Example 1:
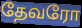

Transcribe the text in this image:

தேவரோ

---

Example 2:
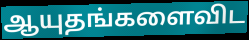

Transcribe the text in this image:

ஆயுதங்களைவிட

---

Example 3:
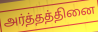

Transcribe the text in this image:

அர்த்தத்தினை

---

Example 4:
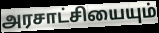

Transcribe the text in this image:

அரசாட்சியையும்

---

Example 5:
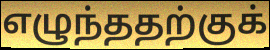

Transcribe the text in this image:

எழுந்ததற்குக்